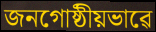
জনগোষ্ঠীয়ভাৱে